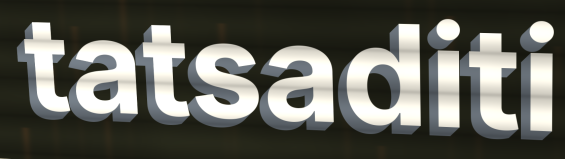
tatsaditi